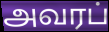
அவரப்